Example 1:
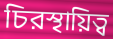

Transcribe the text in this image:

চিরস্থায়িত্ব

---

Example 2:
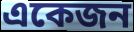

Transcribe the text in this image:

একেজন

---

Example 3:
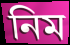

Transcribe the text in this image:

নিম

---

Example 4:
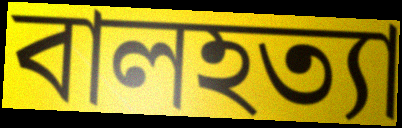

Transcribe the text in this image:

বালহত্যা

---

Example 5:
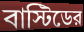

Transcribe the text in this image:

বাস্টিডের